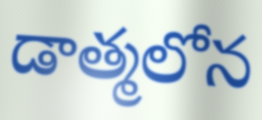
డాత్మలోన